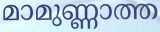
മാമുണ്ണാത്ത